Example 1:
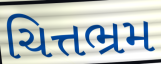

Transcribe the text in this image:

ચિત્તભ્રમ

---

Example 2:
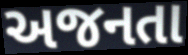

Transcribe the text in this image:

અજનતા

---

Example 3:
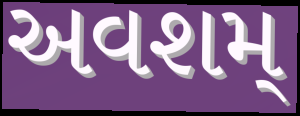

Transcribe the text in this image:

અવશમ્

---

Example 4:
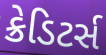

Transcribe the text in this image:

ક્રેડિટર્સ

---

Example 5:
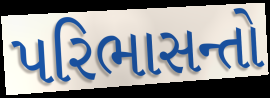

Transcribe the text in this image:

પરિભાસન્તો